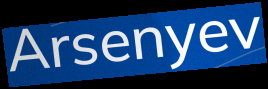
Arsenyev